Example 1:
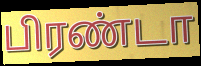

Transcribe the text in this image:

பிரண்டா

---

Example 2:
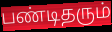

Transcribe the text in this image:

பண்டிதரும்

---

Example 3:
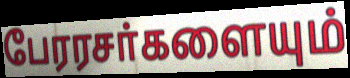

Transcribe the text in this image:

பேரரசர்களையும்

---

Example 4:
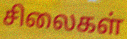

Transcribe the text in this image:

சிலைகள்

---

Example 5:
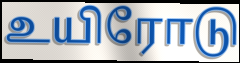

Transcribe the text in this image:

உயிரோடு